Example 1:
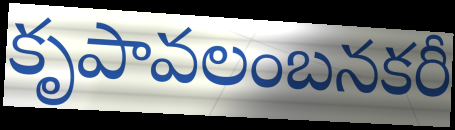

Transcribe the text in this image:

కృపావలంబనకరీ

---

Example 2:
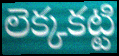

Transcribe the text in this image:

లెక్కకట్టి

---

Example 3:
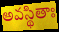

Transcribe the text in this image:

అవస్థితాః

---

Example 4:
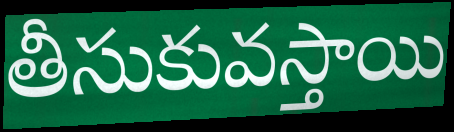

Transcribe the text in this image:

తీసుకువస్తాయి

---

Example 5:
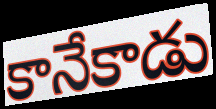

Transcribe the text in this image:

కానేకాడు